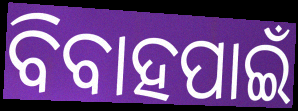
ବିବାହପାଇଁ